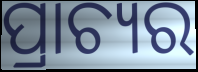
ପ୍ରାଚ୍ୟର